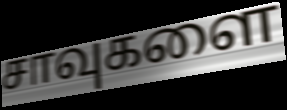
சாவுகளை